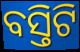
ବସ୍ତିଟି